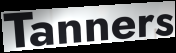
Tanners